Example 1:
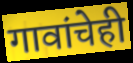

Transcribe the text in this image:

गावांचेही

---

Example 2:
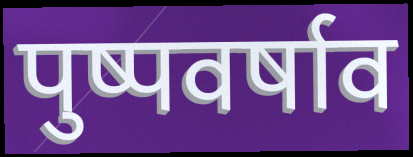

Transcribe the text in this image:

पुष्पवर्षाव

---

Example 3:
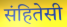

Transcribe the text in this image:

संहितेसी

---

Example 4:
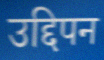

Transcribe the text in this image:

उद्दिपन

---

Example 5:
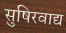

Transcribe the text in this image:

सुषिरवाद्य